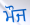
ਮੌਜ